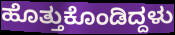
ಹೊತ್ತುಕೊಂಡಿದ್ದಳು